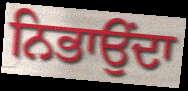
ਨਿਭਾਉਂਦਾ